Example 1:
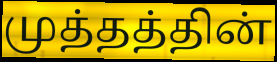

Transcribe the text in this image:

முத்தத்தின்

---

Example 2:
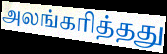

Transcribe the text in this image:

அலங்கரித்தது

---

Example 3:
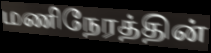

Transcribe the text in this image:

மணிநேரத்தின்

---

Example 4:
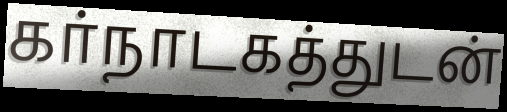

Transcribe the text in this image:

கர்நாடகத்துடன்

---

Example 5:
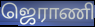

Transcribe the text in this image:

ஜெராணி